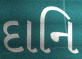
દાનિ